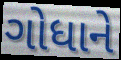
ગોધાને